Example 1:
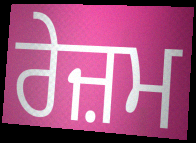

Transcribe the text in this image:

ਰੇਜ਼ਮ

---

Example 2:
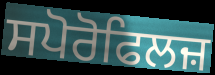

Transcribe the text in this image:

ਸਪੋਰੋਫਿਲਜ਼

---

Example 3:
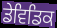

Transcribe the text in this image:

ਡੇਵਿਡਿਕ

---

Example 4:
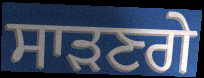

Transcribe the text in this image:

ਸਾੜਣਗੇ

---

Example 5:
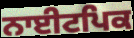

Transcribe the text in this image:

ਨਾਈਟਪਿਕ